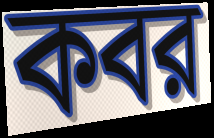
কবর